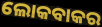
ଲୋକବାକର